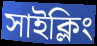
সাইক্লিং